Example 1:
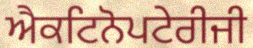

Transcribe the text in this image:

ਐਕਟਿਨੋਪਟੇਰੀਜੀ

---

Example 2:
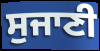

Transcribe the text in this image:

ਸੁਜਾਣੀ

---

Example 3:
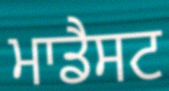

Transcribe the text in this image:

ਮਾਡੈਸਟ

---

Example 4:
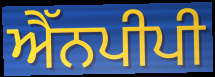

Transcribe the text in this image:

ਐੱਨਪੀਪੀ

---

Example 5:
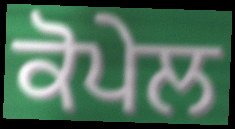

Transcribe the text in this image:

ਕੋਪੇਲ